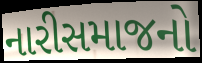
નારીસમાજનો